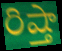
రిష్తా